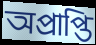
অপ্রাপ্তি